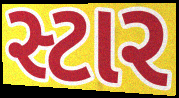
સ્ટાર